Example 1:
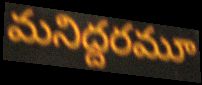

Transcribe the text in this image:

మనిద్దరమూ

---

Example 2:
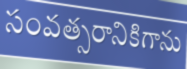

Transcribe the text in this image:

సంవత్సరానికిగాను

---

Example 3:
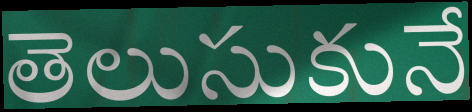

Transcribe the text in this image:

తెలుసుకునే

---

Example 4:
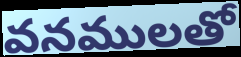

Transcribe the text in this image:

వనములతో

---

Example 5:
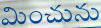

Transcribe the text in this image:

మించును